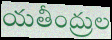
యతీంద్రుల